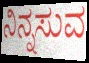
ನಿನ್ನಸುವ